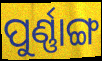
ପୁର୍ଣ୍ଣାଙ୍ଗ